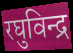
रघुविन्द्र